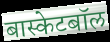
बास्केटबॉल